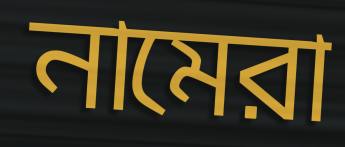
নামেরা